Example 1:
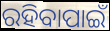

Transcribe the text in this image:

ରହିବାପାଇଁ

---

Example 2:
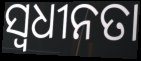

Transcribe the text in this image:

ସ୍ୱଧୀନତା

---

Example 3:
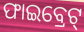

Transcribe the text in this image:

ଫାଇବ୍ରେଟ୍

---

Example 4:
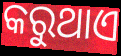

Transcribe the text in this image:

କରୁଥାଏ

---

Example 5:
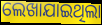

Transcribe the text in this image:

ଲେଖାଯାଇଥିଲା